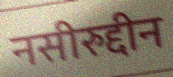
नसीरुद्दीन